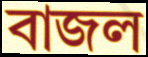
বাজল